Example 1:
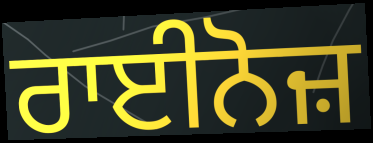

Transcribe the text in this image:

ਰਾਈਨੋਜ਼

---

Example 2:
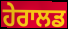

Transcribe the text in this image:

ਹੇਰਾਲਡ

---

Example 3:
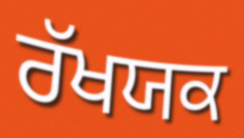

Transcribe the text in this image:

ਰੱਖਯਕ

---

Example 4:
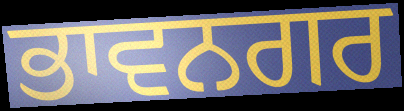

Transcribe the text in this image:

ਭਾਵਨਗਰ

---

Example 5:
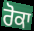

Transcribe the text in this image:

ਰੋਕਾ